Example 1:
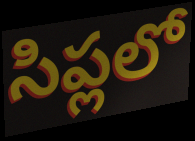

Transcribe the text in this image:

సిప్లలో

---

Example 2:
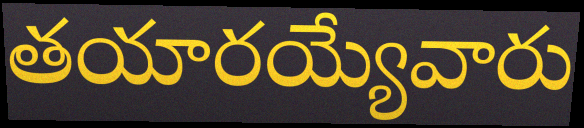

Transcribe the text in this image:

తయారయ్యేవారు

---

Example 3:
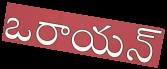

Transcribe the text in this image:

ఒరాయన్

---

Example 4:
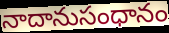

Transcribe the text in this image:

నాదానుసంధానం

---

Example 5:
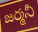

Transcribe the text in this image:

జర్మనీ